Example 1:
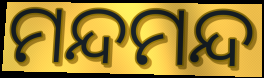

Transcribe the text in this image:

ମନ୍ଦମନ୍ଦ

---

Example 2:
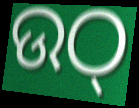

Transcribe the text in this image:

ଉଠ୍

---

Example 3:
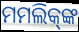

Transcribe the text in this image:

ମମଲିକ୍‌ଙ୍କ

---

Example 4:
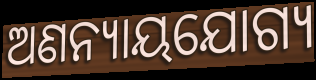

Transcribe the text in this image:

ଅଣନ୍ୟାୟଯୋଗ୍ୟ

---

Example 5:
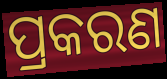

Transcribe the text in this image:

ପ୍ରକରଣ